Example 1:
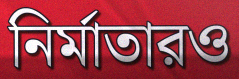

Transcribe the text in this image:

নির্মাতারও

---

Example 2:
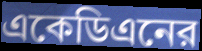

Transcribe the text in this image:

একেডিএনের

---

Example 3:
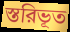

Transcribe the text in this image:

স্তরিভূত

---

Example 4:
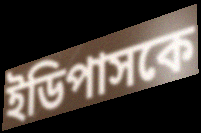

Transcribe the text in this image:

ইডিপাসকে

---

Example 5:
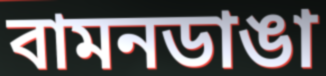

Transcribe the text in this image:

বামনডাঙা